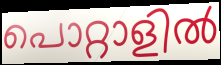
പൊറ്റാളിൽ